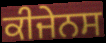
ਕੀਜੇਨਸ